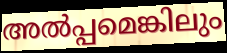
അൽപ്പമെങ്കിലും